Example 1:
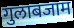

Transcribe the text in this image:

गुलाबजाम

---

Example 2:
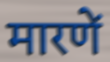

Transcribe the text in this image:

मारणें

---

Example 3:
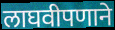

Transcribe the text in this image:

लाघवीपणाने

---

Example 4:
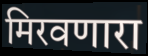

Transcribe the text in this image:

मिरवणारा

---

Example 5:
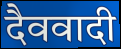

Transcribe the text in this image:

दैववादी